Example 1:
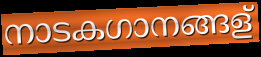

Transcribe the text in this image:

നാടകഗാനങ്ങള്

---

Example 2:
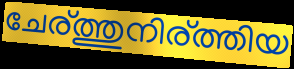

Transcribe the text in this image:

ചേര്ത്തുനിര്ത്തിയ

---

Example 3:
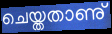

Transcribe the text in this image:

ചെയ്തതാണു്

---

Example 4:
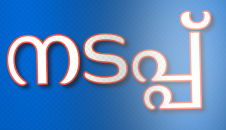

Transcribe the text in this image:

നടപ്പ്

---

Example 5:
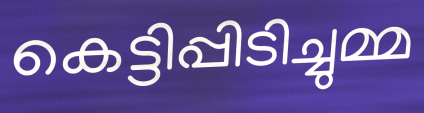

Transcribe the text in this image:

കെട്ടിപ്പിടിച്ചുമ്മ